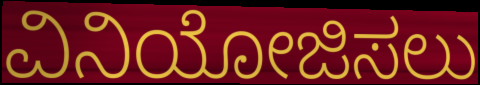
ವಿನಿಯೋಜಿಸಲು